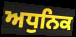
ਅਧੁਨਿਕ